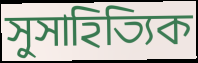
সুসাহিত্যিক